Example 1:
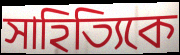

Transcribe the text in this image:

সাহিত্যিকে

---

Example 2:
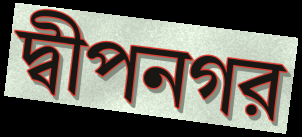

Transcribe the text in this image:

দ্বীপনগর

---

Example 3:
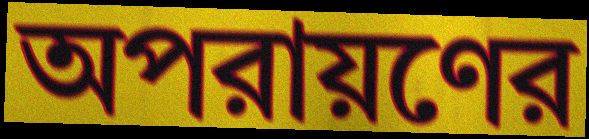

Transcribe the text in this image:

অপরায়ণের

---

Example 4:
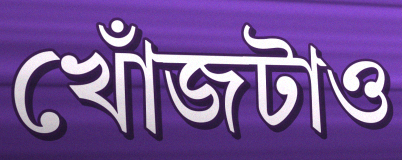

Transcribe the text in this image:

খোঁজটাও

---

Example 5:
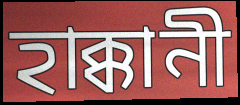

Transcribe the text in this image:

হাক্কানী